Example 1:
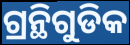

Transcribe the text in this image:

ଗ୍ରନ୍ଥିଗୁଡିକ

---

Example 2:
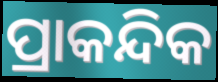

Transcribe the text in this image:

ପ୍ରାକନ୍ଦିକ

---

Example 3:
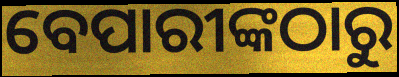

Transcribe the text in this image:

ବେପାରୀଙ୍କଠାରୁ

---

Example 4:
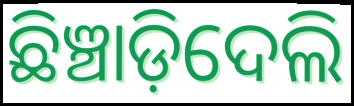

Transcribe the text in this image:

ଛିଞ୍ଚାଡ଼ିଦେଲି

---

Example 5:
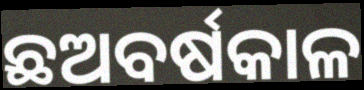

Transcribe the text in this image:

ଛଅବର୍ଷକାଳ